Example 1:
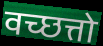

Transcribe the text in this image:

वच्छत्तो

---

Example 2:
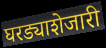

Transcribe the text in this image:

घरड्याशेजारी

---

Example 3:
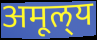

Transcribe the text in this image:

अमूल्य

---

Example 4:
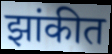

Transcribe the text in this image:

झांकीत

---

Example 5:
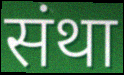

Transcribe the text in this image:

संथा